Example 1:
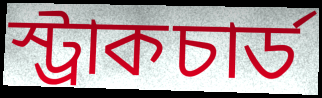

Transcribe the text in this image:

স্ট্রাকচার্ড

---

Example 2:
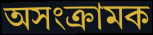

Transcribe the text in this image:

অসংক্রামক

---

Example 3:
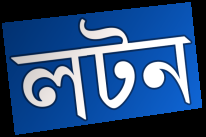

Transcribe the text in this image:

লটন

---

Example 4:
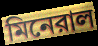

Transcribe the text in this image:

মিনেরাল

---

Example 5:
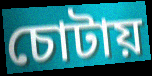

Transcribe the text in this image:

চোটায়